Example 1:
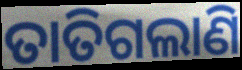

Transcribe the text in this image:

ତାତିଗଲାଣି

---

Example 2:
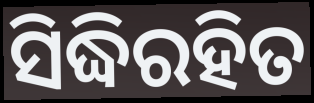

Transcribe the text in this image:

ସିଦ୍ଧିରହିତ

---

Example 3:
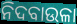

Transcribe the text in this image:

ନିଦବାଉଳା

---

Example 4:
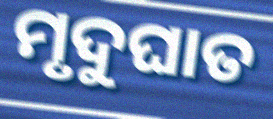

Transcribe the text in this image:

ମୃଦୁଘାତ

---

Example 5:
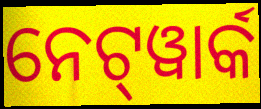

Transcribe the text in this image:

ନେଟ୍‌ୱାର୍କ